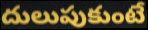
దులుపుకుంటే